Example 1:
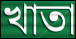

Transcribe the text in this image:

খাতা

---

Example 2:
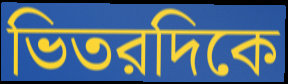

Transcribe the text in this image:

ভিতরদিকে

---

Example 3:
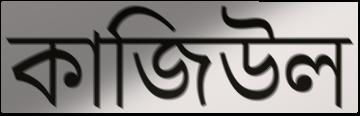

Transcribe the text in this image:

কাজিউল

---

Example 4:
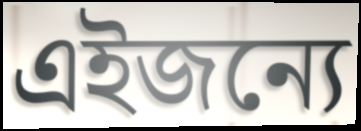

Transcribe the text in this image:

এইজন্যে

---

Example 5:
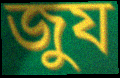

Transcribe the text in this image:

জুয